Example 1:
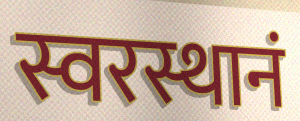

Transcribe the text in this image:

स्वरस्थानं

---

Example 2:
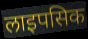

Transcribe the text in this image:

लाइपसिक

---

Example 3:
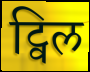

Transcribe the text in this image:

ट्विल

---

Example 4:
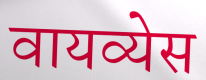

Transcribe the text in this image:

वायव्येस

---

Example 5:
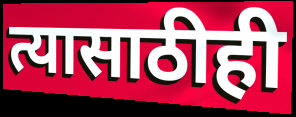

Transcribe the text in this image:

त्यासाठीही